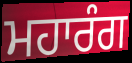
ਮਹਾਰੰਗ